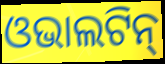
ଓଭାଲଟିନ୍